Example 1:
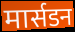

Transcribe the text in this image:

मार्सडन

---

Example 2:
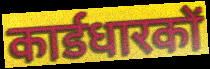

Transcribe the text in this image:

कार्डधारकों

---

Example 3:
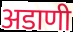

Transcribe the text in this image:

अडाणी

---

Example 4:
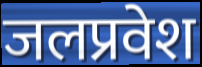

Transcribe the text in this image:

जलप्रवेश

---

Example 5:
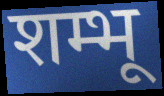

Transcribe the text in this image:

शम्भू